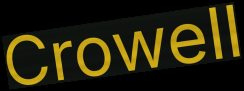
Crowell